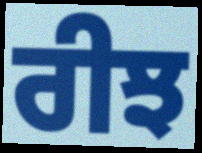
ਰੀਝ